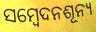
ସମ୍ବେଦନଶୂନ୍ୟ